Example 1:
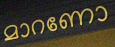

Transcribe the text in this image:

മാറണോ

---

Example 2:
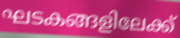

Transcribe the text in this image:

ഘടകങ്ങളിലേക്ക്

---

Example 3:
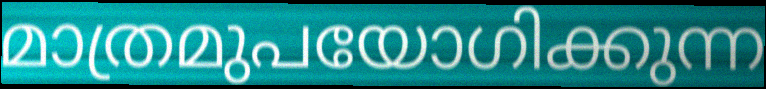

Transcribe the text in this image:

മാത്രമുപയോഗിക്കുന്ന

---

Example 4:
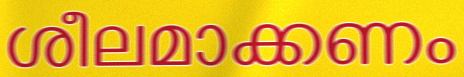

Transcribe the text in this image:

ശീലമാക്കണം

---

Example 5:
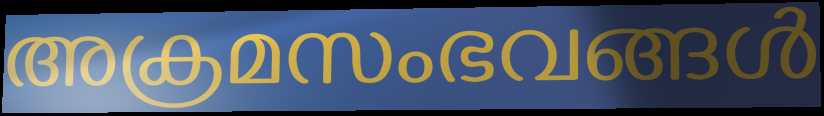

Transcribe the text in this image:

അക്രമസംഭവങ്ങൾ